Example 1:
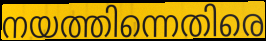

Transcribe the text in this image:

നയത്തിന്നെതിരെ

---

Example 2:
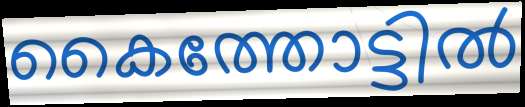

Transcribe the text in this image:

കൈത്തോട്ടിൽ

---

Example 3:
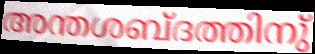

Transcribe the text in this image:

അന്തശബ്ദത്തിനു്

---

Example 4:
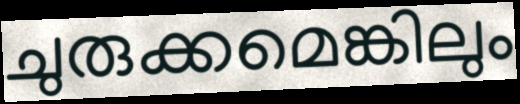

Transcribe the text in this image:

ചുരുക്കമെങ്കിലും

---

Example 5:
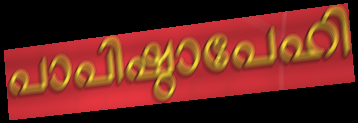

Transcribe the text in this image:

പാപിഷ്ഠാപേഹി